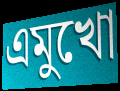
এমুখো